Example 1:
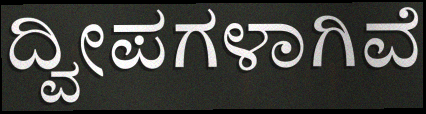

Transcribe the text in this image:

ದ್ವೀಪಗಳಾಗಿವೆ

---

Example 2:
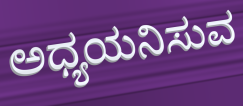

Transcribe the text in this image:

ಅಧ್ಯಯನಿಸುವ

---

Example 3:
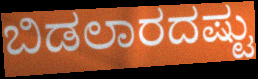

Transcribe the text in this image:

ಬಿಡಲಾರದಷ್ಟು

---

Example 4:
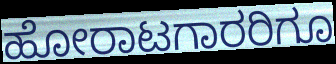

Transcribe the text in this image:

ಹೋರಾಟಗಾರರಿಗೂ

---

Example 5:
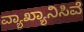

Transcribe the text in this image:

ವ್ಯಾಖ್ಯಾನಿಸಿವೆ